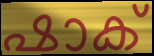
ഷാക്